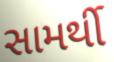
સામર્થી